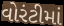
વોરંટીમાં